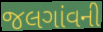
જલગાંવની